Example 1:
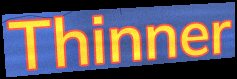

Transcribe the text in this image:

Thinner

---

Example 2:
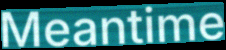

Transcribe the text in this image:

Meantime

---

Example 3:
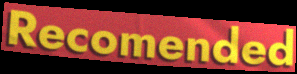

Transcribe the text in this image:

Recomended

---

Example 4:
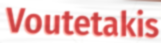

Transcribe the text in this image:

Voutetakis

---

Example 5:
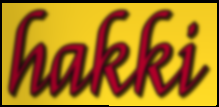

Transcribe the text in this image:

hakki